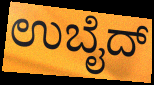
ಉಬೈದ್